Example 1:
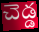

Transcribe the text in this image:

చెడ్డ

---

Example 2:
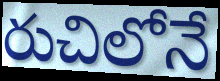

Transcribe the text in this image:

రుచిలోనే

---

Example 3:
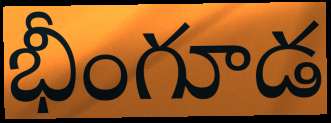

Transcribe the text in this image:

భీంగూడ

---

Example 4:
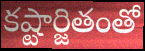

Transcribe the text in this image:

కష్టార్జితంతో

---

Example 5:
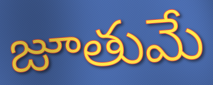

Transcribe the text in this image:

జూతుమే